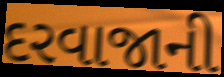
દરવાજાની